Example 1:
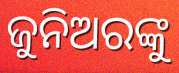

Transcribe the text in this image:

ଜୁନିଅରଙ୍କୁ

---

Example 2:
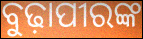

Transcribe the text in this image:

ବୁଢ଼ାପୀରଙ୍କ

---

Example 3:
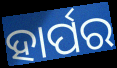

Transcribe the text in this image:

ହାର୍ପର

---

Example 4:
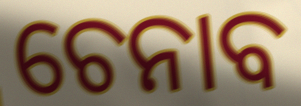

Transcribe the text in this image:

ଚେନାବ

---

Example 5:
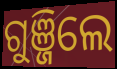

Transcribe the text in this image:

ଗୁଞ୍ଜିଲେ